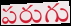
పరుగు